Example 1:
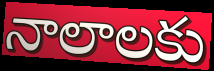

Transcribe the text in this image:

నాలాలకు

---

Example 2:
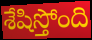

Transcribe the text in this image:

శేషిస్తోంది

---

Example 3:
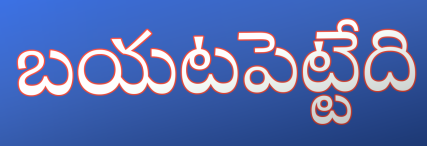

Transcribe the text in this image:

బయటపెట్టేది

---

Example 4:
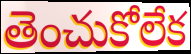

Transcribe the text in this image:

తెంచుకోలేక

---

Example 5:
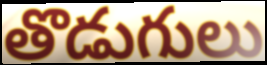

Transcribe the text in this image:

తొడుగులు